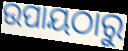
ଉପାୟଠାରୁ